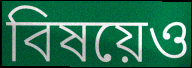
বিষয়েও